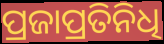
ପ୍ରଜାପ୍ରତିନିଧି